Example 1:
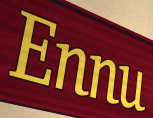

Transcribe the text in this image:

Ennu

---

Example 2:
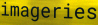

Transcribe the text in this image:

imageries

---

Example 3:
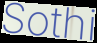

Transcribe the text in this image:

Sothi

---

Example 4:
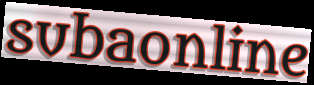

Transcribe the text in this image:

subaonline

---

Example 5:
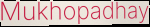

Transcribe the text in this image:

Mukhopadhay